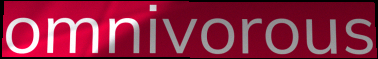
omnivorous